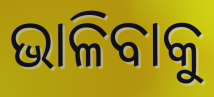
ଭାଳିବାକୁ